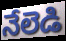
నేలెడి